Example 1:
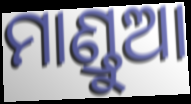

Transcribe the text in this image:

ମାଣ୍ଡୁଆ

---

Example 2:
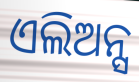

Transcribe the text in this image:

ଏଲିଅନ୍ସ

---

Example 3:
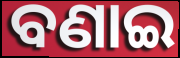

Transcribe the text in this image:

ବଣାଇ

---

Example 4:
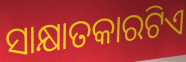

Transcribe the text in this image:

ସାକ୍ଷାତକାରଟିଏ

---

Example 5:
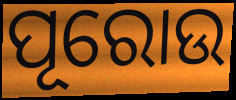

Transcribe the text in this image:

ପୂରୋଉ